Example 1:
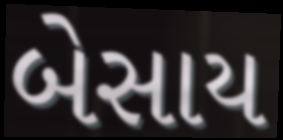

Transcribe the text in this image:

બેસાય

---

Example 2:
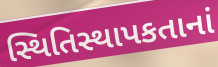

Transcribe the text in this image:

સ્થિતિસ્થાપકતાનાં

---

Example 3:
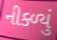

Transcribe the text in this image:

નીક્ળ્યું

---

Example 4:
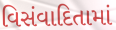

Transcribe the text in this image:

વિસંવાદિતામાં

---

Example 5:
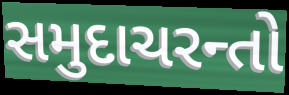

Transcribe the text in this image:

સમુદાચરન્તો